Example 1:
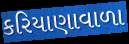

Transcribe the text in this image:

કરિયાણાવાળા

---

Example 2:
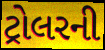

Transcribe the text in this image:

ટ્રોલરની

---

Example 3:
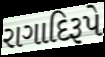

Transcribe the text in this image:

રાગાદિરૂપે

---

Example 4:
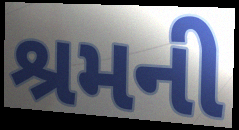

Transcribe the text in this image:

શ્રમની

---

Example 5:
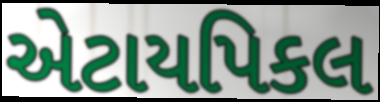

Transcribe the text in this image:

એટાયપિકલ